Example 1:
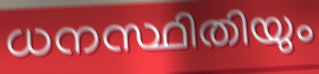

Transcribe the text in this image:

ധനസ്ഥിതിയും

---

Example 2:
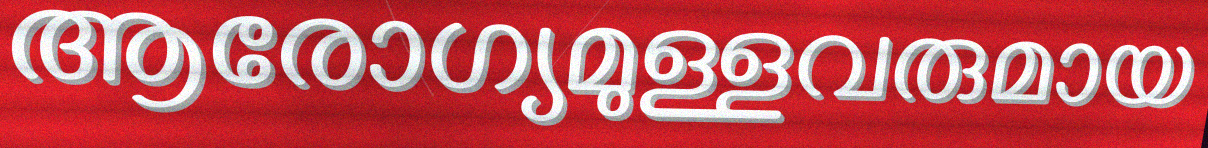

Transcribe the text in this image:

ആരോഗ്യമുള്ളവരുമായ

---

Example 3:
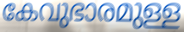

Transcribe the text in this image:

കേവുഭാരമുള്ള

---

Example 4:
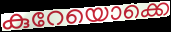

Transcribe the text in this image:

കുറേയൊക്കെ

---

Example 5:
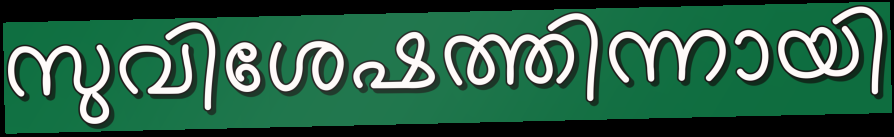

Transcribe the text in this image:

സുവിശേഷത്തിന്നായി